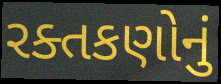
રક્તકણોનું